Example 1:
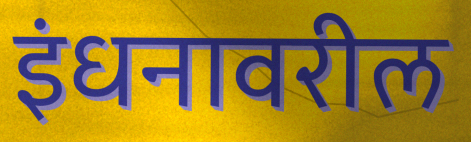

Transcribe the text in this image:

इंधनावरील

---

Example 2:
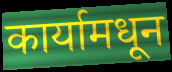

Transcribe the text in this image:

कार्यामधून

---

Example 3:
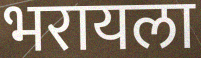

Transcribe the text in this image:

भरायला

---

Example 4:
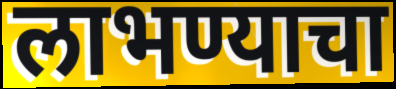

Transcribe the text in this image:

लाभण्याचा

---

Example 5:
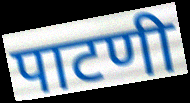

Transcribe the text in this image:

पाटणी